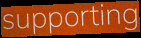
supporting